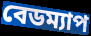
বেডম্যাপ